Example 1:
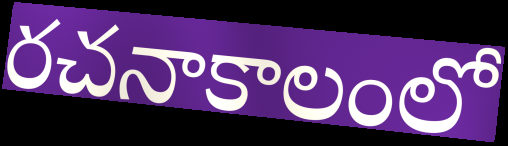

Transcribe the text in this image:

రచనాకాలంలో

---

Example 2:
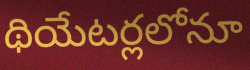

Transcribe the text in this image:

థియేటర్లలోనూ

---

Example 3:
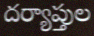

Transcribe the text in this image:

దర్యాప్తుల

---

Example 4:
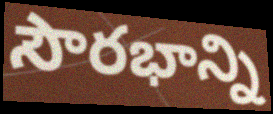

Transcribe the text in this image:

సౌరభాన్ని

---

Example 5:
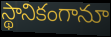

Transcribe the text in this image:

స్థానికంగానూ